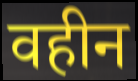
वहीन